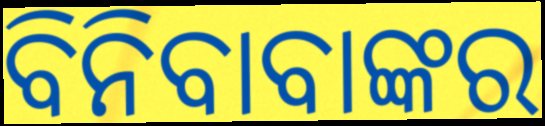
ବିନିବାବାଙ୍କର